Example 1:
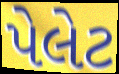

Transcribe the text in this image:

પેલેટ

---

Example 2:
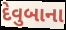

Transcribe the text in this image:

દેવુબાના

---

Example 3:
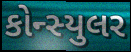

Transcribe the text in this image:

કોન્સ્યુલર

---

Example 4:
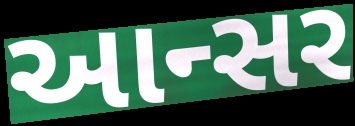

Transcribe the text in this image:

આન્સર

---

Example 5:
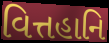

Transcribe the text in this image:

વિત્તહાનિ